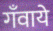
गँवाये